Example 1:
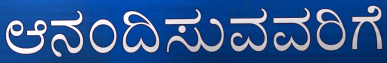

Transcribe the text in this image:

ಆನಂದಿಸುವವರಿಗೆ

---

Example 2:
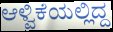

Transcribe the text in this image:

ಆಳ್ವಿಕೆಯಲ್ಲಿದ್ದ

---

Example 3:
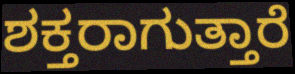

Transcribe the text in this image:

ಶಕ್ತರಾಗುತ್ತಾರೆ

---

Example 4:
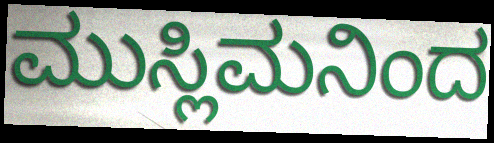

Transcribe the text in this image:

ಮುಸ್ಲಿಮನಿಂದ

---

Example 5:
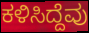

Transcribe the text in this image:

ಕಳಿಸಿದ್ದೆವು